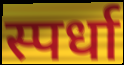
स्पर्धा